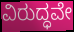
ವಿರುದ್ಧವೇ